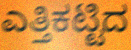
ಎತ್ತಿಕಟ್ಟಿದ